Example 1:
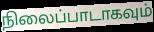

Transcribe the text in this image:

நிலைப்பாடாகவும்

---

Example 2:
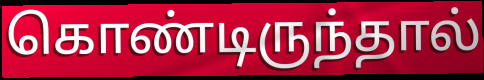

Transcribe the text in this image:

கொண்டிருந்தால்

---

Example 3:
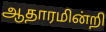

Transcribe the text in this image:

ஆதாரமின்றி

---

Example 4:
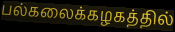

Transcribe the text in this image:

பல்கலைக்கழகத்தில்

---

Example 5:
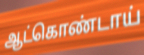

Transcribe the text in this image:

ஆட்கொண்டாய்